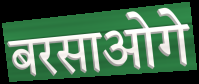
बरसाओगे